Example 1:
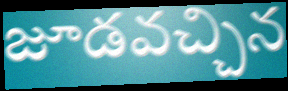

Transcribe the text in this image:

జూడవచ్చిన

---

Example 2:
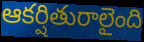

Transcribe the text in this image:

ఆకర్షితురాలైంది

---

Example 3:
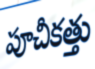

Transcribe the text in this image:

పూచీకత్తు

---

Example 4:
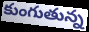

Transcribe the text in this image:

కుంగుతున్న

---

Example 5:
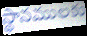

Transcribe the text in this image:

స్థానములకు